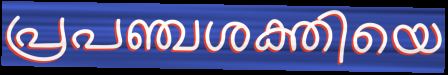
പ്രപഞ്ചശക്തിയെ